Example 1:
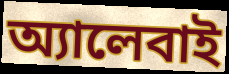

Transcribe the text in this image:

অ্যালেবাই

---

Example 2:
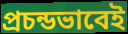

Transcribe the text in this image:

প্রচন্ডভাবেই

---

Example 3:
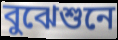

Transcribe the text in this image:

বুঝেশুনে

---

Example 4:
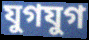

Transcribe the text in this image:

যুগযুগ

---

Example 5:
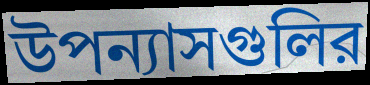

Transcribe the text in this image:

উপন্যাসগুলির